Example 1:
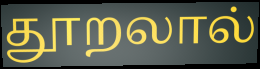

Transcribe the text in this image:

தூறலால்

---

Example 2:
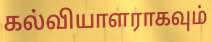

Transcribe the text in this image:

கல்வியாளராகவும்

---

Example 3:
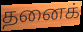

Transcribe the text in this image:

தனைக்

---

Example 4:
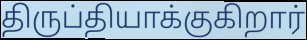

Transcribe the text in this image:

திருப்தியாக்குகிறார்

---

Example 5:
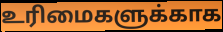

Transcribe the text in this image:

உரிமைகளுக்காக